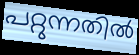
പറ്റുന്നതിൽ